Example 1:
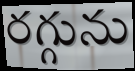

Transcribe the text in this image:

రగ్గును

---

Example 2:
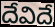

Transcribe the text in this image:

దేవిదే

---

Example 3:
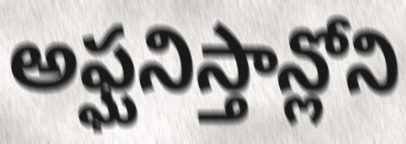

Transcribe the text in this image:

అఫ్ఘనిస్తాన్లోని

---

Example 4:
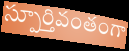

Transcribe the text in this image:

స్పూర్తివంతంగా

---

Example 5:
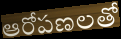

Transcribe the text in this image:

ఆరోపణలతో